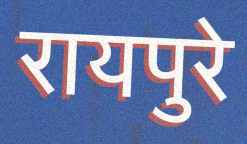
रायपुरे